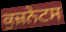
ਕੁਜ਼ਨੇਟਸ